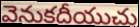
వెనుకదీయుచు